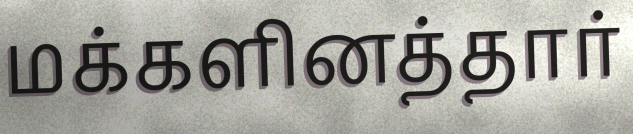
மக்களினத்தார்